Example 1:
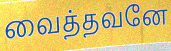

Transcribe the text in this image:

வைத்தவனே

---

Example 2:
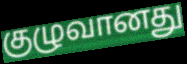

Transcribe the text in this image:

குழுவானது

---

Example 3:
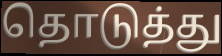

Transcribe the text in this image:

தொடுத்து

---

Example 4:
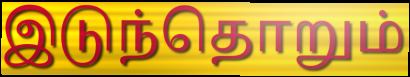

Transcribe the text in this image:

இடுந்தொறும்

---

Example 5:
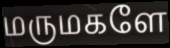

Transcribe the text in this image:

மருமகளே